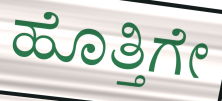
ಹೊತ್ತಿಗೇ